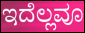
ಇದೆಲ್ಲವೂ